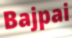
Bajpai